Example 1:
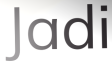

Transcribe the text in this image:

Jadi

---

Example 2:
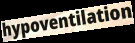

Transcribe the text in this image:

hypoventilation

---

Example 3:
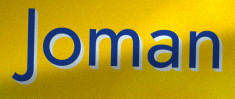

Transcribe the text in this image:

Joman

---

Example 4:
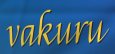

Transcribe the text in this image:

vakuru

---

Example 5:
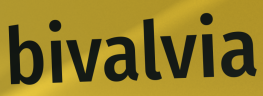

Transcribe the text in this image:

bivalvia